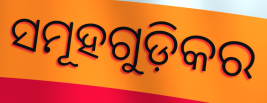
ସମୂହଗୁଡ଼ିକର